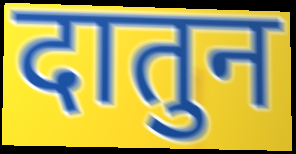
दातुन